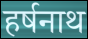
हर्षनाथ